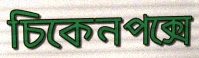
চিকেনপক্সে